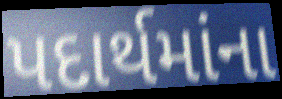
પદાર્થમાંના